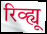
रिव्ह्यू